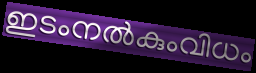
ഇടംനൽകുംവിധം